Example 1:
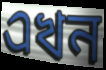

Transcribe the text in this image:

এখন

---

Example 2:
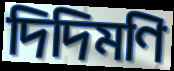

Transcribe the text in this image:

দিদিমণি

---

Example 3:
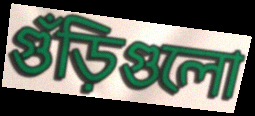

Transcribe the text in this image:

গুঁড়িগুলো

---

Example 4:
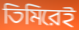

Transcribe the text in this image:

তিমিরেই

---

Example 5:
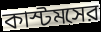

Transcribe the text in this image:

কাস্টমসের